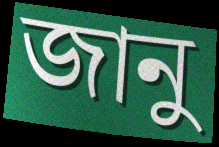
জানু